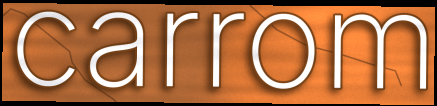
carrom